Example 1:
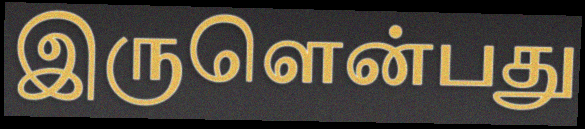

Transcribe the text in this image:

இருளென்பது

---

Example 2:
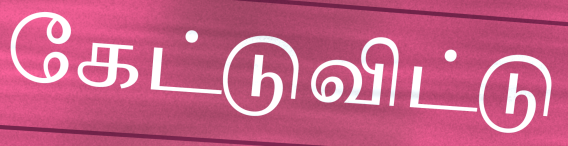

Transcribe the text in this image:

கேட்டுவிட்டு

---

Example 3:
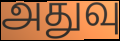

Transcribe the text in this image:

அதுவு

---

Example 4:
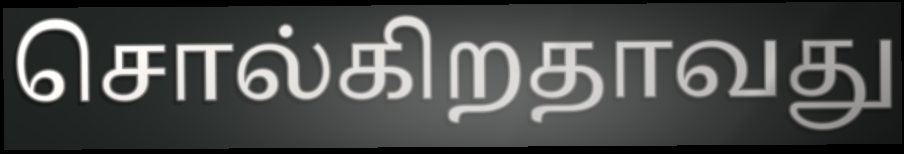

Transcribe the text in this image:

சொல்கிறதாவது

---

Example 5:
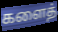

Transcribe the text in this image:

களைத்